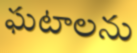
ఘటాలను